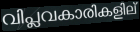
വിപ്ലവകാരികളില്